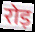
रोड़